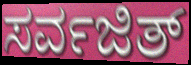
ಸರ್ವಜಿತ್